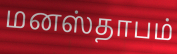
மனஸ்தாபம்